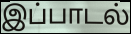
இப்பாடல்